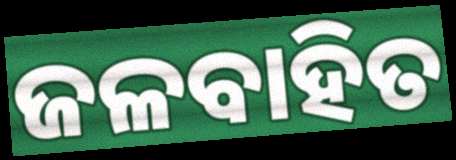
ଜଳବାହିତ